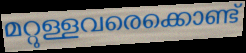
മറ്റുള്ളവരെക്കൊണ്ട്